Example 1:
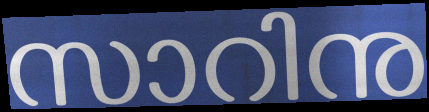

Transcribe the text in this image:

സാറിനു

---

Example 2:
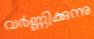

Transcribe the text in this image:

വർണ്ണിക്കുന്നു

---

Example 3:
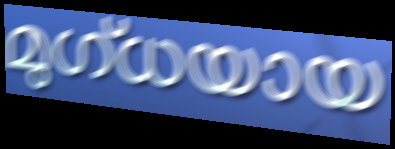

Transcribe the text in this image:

മുഗ്ധയായ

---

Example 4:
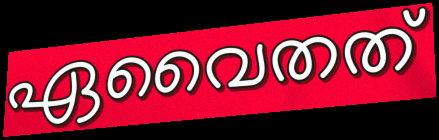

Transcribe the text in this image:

ഏവൈതത്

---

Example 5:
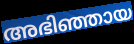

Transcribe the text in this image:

അഭിഞ്ഞായ